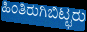
ಹಿಂತಿರುಗಿಬಿಟ್ಟರು